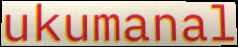
ukumanal